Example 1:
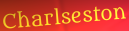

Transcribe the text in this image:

Charlseston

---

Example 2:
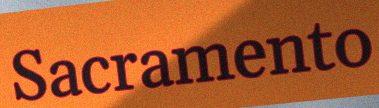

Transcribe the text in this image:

Sacramento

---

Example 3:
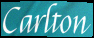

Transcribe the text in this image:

Carlton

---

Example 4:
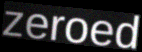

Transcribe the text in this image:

zeroed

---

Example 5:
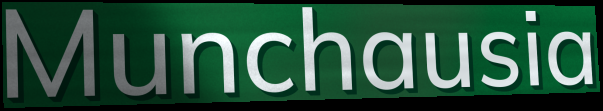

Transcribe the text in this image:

Munchausia